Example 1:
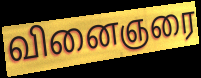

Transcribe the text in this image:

வினைஞரை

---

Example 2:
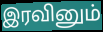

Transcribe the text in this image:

இரவினும்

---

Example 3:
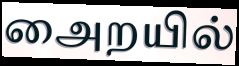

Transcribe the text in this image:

அைறயில்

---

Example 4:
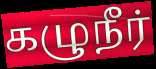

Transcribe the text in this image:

கழுநீர்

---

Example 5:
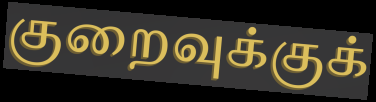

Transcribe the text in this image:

குறைவுக்குக்